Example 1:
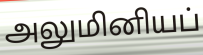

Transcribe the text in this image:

அலுமினியப்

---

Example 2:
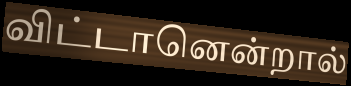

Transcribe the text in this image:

விட்டானென்றால்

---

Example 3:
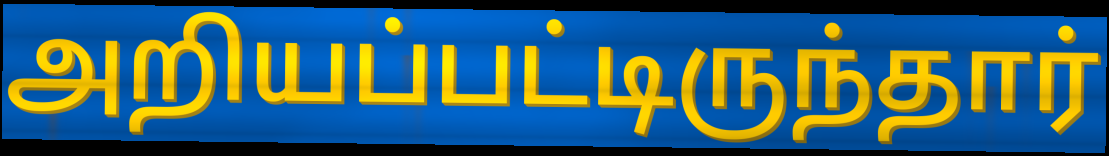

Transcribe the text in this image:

அறியப்பட்டிருந்தார்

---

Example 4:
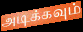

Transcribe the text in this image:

அடிக்கவும்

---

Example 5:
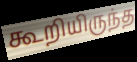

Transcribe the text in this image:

கூறியிருந்த